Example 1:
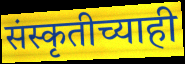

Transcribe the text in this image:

संस्कृतीच्याही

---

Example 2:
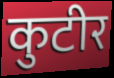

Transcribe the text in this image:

कुटीर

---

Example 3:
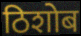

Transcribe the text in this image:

ठिशोब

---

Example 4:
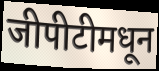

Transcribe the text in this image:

जीपीटीमधून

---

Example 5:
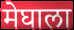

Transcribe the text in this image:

मेघाला